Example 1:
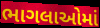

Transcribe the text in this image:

ભાગલાઓમાં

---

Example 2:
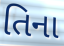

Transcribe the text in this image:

તિના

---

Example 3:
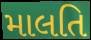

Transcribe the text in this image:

માલતિ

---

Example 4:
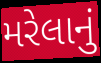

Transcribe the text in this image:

મરેલાનું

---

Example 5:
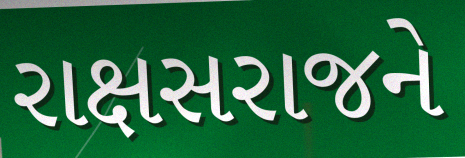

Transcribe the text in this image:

રાક્ષસરાજને